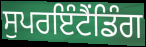
ਸੁਪਰਇੰਟੈਂਡਿੰਗ